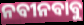
ନବୀନବାବୁ